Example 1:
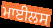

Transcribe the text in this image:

ਮਾਈਲਸ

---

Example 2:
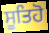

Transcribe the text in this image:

ਸੂਤਿਹੋ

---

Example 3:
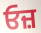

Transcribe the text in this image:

ਓਜ਼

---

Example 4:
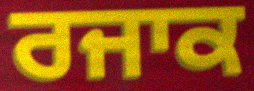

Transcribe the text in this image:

ਰਜਾਕ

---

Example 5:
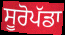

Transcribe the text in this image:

ਸੂਰੋਪੱਡਾ